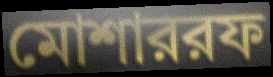
মোশাররফ